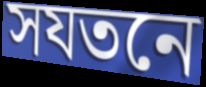
সযতনে